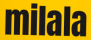
milala